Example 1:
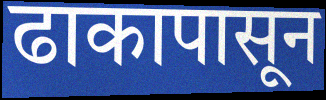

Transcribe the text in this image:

ढाकापासून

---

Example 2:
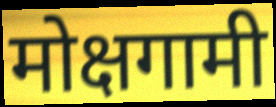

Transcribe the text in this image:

मोक्षगामी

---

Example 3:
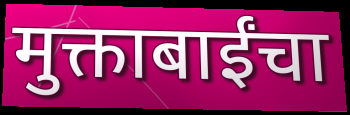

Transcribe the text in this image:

मुक्ताबाईंचा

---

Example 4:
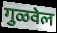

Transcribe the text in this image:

गुळवेल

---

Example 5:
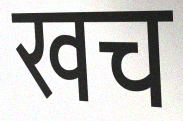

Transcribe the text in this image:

खच